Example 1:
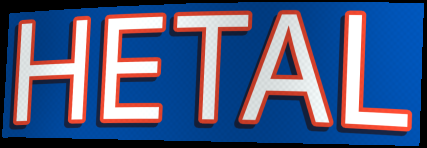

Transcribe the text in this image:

HETAL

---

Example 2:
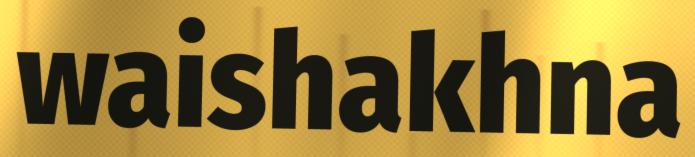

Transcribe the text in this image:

waishakhna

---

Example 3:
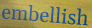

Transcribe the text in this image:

embellish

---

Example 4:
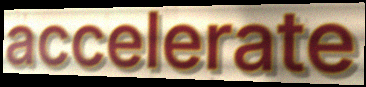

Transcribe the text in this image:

accelerate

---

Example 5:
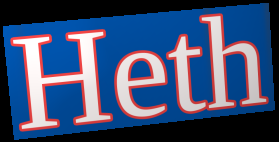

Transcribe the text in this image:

Heth